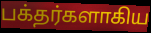
பக்தர்களாகிய